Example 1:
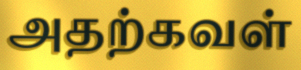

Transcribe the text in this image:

அதற்கவள்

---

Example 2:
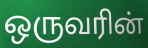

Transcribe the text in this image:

ஒருவரின்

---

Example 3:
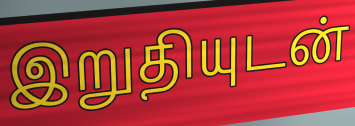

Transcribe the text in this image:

இறுதியுடன்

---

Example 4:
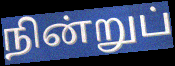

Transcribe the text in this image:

நின்றுப்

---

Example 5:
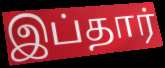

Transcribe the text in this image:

இப்தார்